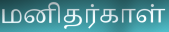
மனிதர்காள்